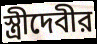
স্ত্রীদেবীর